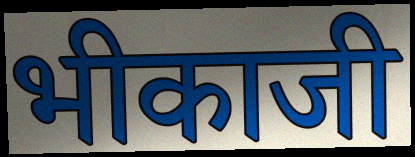
भीकाजी